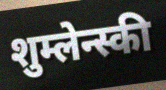
शुम्लेन्स्की